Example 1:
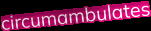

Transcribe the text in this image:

circumambulates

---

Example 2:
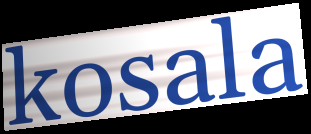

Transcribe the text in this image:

kosala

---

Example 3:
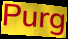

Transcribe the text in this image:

Purg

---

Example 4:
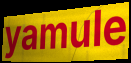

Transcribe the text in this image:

yamule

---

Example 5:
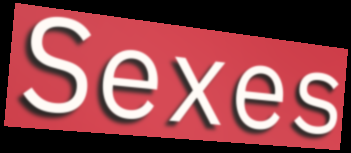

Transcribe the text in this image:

Sexes